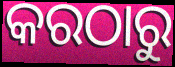
କରଠାରୁ